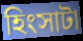
হিংসাটা